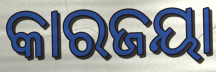
କାରଜୟା